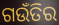
ଗଉଁତିର